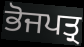
ਭੋਜਪਤ੍ਰ